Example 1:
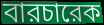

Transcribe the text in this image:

বারচারেক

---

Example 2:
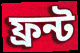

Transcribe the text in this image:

ফ্রন্ট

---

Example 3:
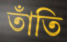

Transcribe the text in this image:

তাঁতি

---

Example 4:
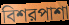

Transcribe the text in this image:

বিশরপাশা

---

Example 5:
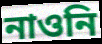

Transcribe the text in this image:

নাওনি